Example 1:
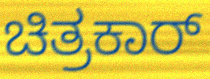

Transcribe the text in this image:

ಚಿತ್ರಕಾರ್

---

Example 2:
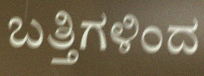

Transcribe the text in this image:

ಬತ್ತಿಗಳಿಂದ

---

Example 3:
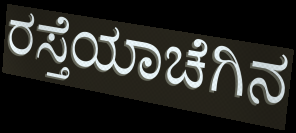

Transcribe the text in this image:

ರಸ್ತೆಯಾಚೆಗಿನ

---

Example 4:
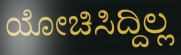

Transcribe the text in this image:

ಯೋಚಿಸಿದ್ದಿಲ್ಲ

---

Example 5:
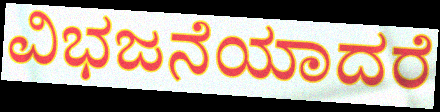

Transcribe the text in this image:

ವಿಭಜನೆಯಾದರೆ